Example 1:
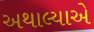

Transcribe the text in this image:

અથાલ્યાએ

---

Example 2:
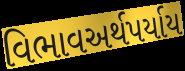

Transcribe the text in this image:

વિભાવઅર્થપર્યાય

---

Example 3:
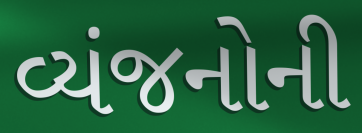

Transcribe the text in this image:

વ્યંજનોની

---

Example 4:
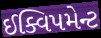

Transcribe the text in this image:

ઈક્વિપમેન્ટ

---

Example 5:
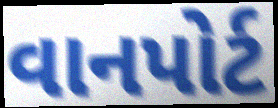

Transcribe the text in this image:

વાનપોર્ટ